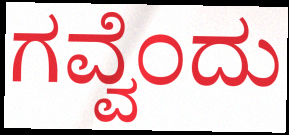
ಗವ್ವೆಂದು